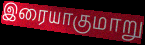
இரையாகுமாறு